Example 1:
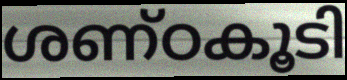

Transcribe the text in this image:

ശണ്ഠകൂടി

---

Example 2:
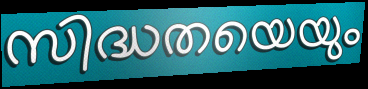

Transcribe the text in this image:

സിദ്ധതയെയും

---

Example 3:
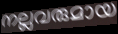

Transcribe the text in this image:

നല്ലവരുമായ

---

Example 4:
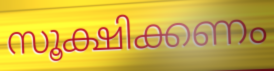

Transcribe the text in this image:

സൂക്ഷിക്കണം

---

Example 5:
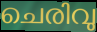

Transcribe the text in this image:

ചെരിവു